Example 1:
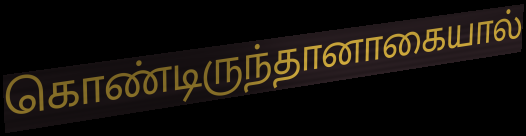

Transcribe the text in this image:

கொண்டிருந்தானாகையால்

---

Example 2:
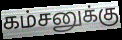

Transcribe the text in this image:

கம்சனுக்கு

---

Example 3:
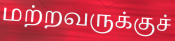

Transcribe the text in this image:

மற்றவருக்குச்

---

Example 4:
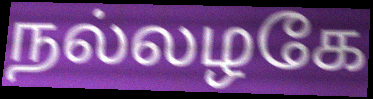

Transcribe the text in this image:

நல்லழகே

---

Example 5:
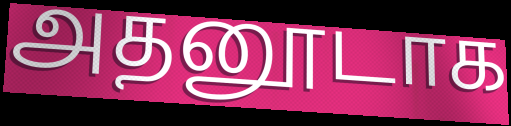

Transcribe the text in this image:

அதனூடாக